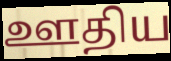
ஊதிய